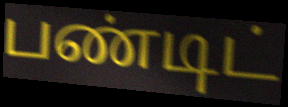
பண்டிட்